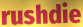
rushdie